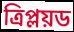
ত্রিপ্লয়ড